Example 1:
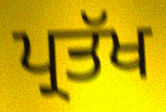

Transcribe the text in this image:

ਪ੍ਰਤੱਖ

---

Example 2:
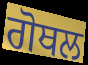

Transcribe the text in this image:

ਗੋਥਲ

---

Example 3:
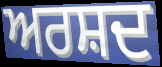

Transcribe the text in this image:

ਅਰਸ਼ਦ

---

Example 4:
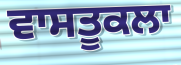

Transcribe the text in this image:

ਵਾਸਤੂਕਲਾ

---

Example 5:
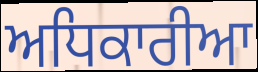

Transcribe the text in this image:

ਅਧਿਕਾਰੀਆ